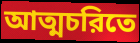
আত্মচরিতে